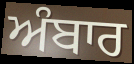
ਅੰਬਾਰ